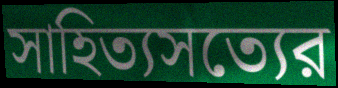
সাহিত্যসত্যের